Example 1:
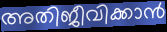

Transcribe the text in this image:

അതിജീവിക്കാൻ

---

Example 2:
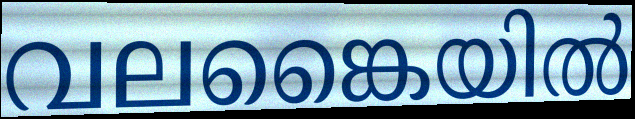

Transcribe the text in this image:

വലങ്കൈയിൽ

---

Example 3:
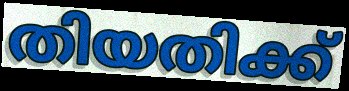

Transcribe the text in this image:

തിയതിക്ക്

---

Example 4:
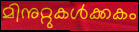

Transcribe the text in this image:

മിനുറ്റുകൾക്കകം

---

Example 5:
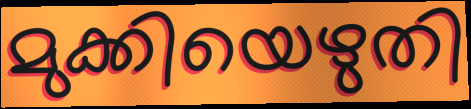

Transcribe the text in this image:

മുക്കിയെഴുതി